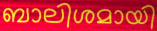
ബാലിശമായി